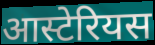
आस्टेरियस